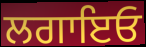
ਲਗਾਇਓ